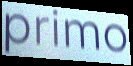
primo